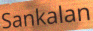
Sankalan